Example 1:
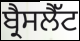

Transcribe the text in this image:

ਬ੍ਰੈਸਲੈੱਟ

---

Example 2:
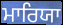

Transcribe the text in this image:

ਮਾਰਿਯਾ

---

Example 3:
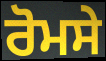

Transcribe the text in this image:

ਰੋਮਸੇ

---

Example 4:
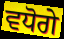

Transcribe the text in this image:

ਵਧੋਗੇ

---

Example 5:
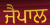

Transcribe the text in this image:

ਜੈਪਾਲ